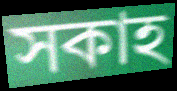
সকাহ